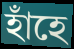
হাঁহে